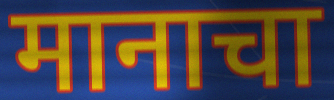
मानाचा